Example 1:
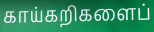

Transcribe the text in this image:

காய்கறிகளைப்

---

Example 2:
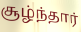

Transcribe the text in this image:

சூழ்ந்தார்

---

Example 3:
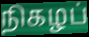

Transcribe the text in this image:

நிகழப்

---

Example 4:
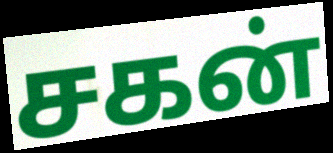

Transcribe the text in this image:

சகன்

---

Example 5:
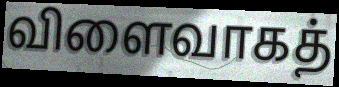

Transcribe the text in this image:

விளைவாகத்